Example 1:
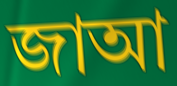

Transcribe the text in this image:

জাআ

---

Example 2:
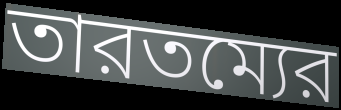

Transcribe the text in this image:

তারতম্যের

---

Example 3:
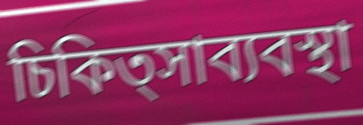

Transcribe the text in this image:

চিকিত্সাব্যবস্থা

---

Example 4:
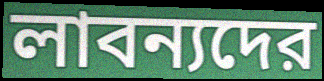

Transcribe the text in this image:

লাবন্যদের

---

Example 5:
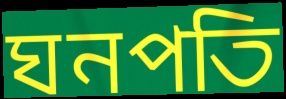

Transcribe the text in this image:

ঘনপতি